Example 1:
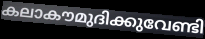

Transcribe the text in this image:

കലാകൗമുദിക്കുവേണ്ടി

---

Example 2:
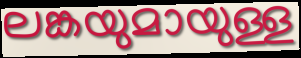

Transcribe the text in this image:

ലങ്കയുമായുള്ള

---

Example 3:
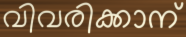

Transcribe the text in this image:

വിവരിക്കാന്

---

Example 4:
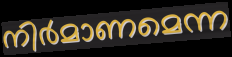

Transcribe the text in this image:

നിർമാണമെന്ന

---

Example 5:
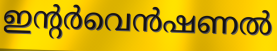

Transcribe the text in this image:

ഇന്റർവെൻഷണൽ